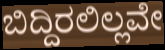
ಬಿದ್ದಿರಲಿಲ್ಲವೇ